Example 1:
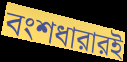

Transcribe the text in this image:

বংশধারারই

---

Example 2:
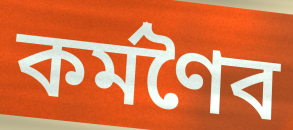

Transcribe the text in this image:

কর্মণৈব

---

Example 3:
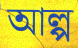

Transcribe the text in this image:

আল্প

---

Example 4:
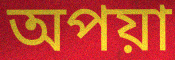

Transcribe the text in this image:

অপয়া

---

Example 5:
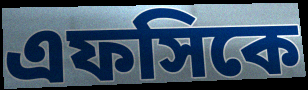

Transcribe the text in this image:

এফসিকে